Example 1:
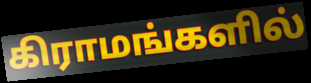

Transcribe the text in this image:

கிராமங்களில்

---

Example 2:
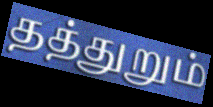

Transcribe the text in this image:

தத்துறும்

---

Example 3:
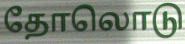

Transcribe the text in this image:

தோலொடு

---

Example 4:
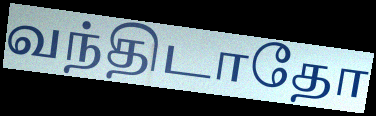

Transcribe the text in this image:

வந்திடாதோ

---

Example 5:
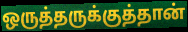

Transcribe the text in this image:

ஒருத்தருக்குத்தான்